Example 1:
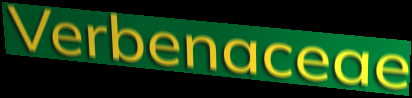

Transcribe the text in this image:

Verbenaceae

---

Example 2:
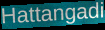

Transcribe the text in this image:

Hattangadi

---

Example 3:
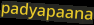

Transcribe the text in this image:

padyapaana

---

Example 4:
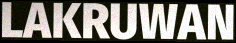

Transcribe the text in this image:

LAKRUWAN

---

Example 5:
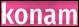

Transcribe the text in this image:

konam